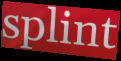
splint